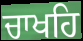
ਚਾਖਹਿ